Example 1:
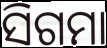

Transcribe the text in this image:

ସିଗମା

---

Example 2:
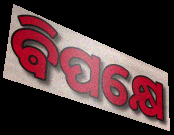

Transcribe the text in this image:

ଵିପକ୍ଷେ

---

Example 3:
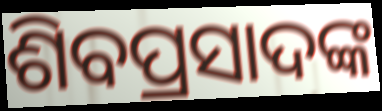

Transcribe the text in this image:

ଶିବପ୍ରସାଦଙ୍କ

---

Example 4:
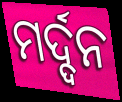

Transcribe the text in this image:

ମର୍ଦ୍ଦନ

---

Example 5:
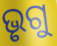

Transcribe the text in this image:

ଭୃଗୁ